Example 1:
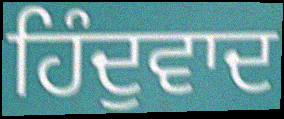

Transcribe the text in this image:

ਹਿੰਦੁਵਾਦ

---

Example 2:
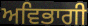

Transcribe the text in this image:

ਅਵਿਭਾਗੀ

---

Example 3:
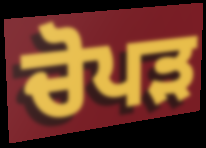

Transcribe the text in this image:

ਚੋਪੜ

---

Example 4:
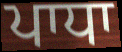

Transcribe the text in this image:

ਪਾਧਾ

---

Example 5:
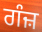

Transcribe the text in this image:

ਗੰਜ਼